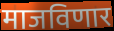
माजविणार